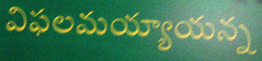
విఫలమయ్యాయన్న